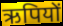
ऋपियों